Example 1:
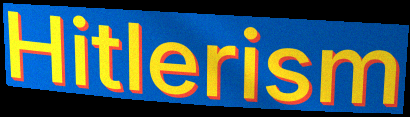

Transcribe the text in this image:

Hitlerism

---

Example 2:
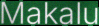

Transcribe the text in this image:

Makalu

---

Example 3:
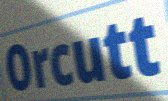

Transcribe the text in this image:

Orcutt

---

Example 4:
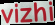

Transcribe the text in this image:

vizhi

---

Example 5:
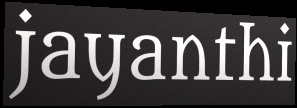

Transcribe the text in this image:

jayanthi